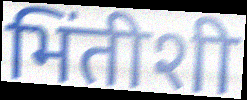
भिंतीशी